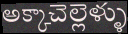
అక్కాచెల్లెళ్ళు